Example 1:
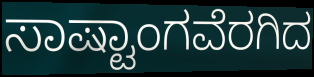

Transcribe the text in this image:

ಸಾಷ್ಟಾಂಗವೆರಗಿದ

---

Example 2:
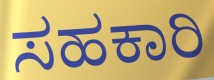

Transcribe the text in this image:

ಸಹಕಾರಿ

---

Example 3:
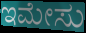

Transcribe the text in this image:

ಇಮೇಸು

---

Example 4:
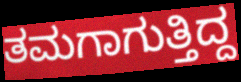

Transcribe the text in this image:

ತಮಗಾಗುತ್ತಿದ್ದ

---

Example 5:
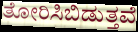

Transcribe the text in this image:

ತೋರಿಸಿಬಿಡುತ್ತವೆ